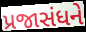
પ્રજાસંધને